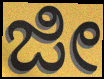
ಜೀ